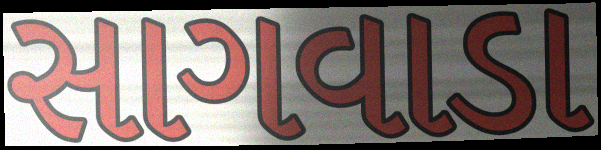
સાગવાડા